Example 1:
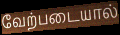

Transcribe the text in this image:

வேற்படையால்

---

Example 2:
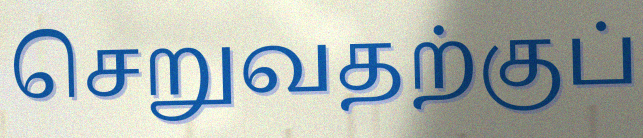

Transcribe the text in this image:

செறுவதற்குப்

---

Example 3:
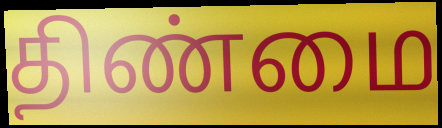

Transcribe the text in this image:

திண்மை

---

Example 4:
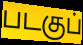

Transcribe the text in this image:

படகுப்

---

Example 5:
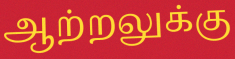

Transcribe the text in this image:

ஆற்றலுக்கு